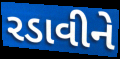
રડાવીને